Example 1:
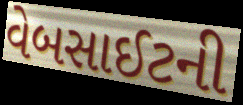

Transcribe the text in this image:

વેબસાઈટની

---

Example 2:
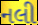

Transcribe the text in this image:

નલી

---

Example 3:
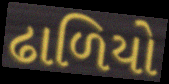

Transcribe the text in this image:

ઢાળિયો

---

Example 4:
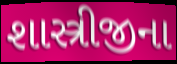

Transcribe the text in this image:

શાસ્ત્રીજીના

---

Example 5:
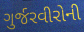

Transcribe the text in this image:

ગુર્જરવીરોની